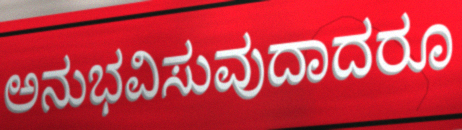
ಅನುಭವಿಸುವುದಾದರೂ